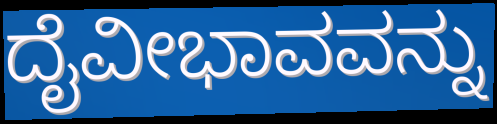
ದೈವೀಭಾವವನ್ನು